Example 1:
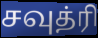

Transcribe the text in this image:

சவுத்ரி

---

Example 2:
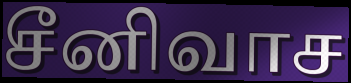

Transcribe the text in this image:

சீனிவாச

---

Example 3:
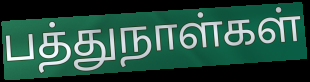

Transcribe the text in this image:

பத்துநாள்கள்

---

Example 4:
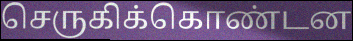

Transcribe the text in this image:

செருகிக்கொண்டன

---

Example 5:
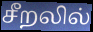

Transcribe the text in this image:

சீறலில்